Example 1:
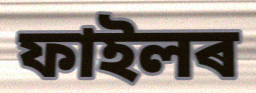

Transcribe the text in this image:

ফাইলৰ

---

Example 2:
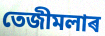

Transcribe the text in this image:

তেজীমলাৰ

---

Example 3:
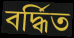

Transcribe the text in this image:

বৰ্দ্ধিত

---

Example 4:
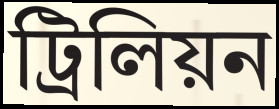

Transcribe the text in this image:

ট্ৰিলিয়ন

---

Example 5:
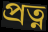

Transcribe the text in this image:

প্ৰত্ন